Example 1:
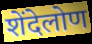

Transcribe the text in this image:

शेंदेलोण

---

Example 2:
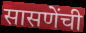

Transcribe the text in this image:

सासणेंची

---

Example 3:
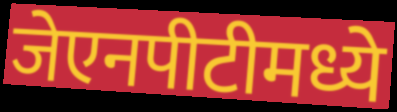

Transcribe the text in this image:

जेएनपीटीमध्ये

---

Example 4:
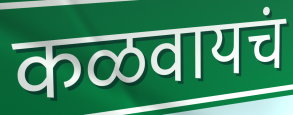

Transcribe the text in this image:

कळवायचं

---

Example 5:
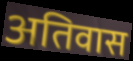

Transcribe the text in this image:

अतिवास